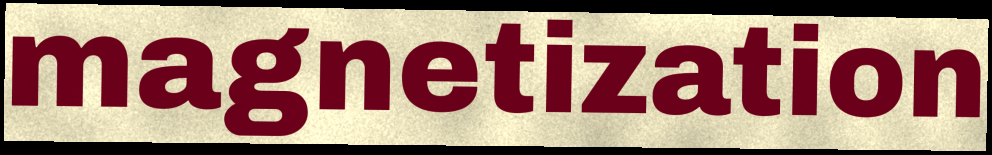
magnetization